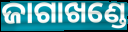
ଜାଗାଖଣ୍ଡେ